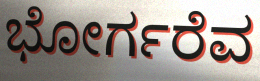
ಭೋರ್ಗರೆವ